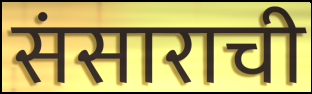
संसाराची